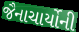
જૈનાચાર્યોની